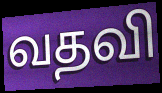
வதவி